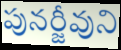
పునర్జీవుని